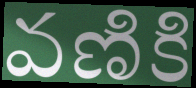
వణికి